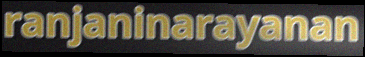
ranjaninarayanan